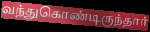
வந்துகொண்டிருந்தார்